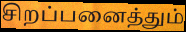
சிறப்பனைத்தும்